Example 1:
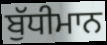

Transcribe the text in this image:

ਬੁੱਧੀਮਾਨ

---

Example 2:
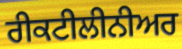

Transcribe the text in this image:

ਰੀਕਟੀਲੀਨੀਅਰ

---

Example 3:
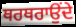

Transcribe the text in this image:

ਥਰਥਰਾਉਂਦੇ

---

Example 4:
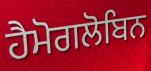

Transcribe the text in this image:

ਹੈਮੋਗਲੋਬਿਨ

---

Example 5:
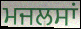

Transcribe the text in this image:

ਮਜਲਸਾਂ